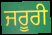
ਜਰੂਰੀ